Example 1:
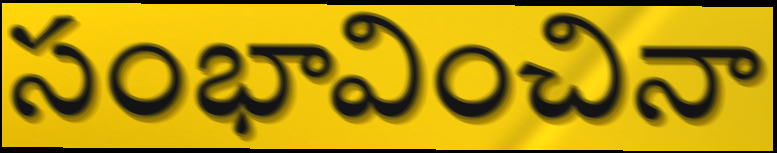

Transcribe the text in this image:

సంభావించినా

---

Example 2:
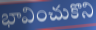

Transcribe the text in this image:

భావించుకొని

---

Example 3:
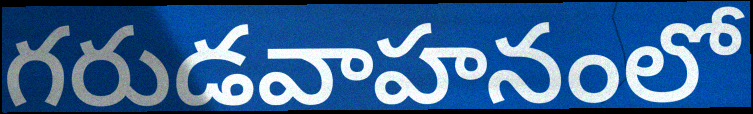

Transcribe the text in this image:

గరుడవాహనంలో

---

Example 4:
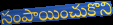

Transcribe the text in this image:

సంపాయించుకొని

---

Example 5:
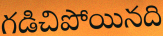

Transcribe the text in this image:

గడిచిపోయినది